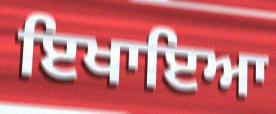
ਇਖਾਇਆ